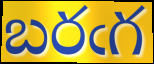
బరఁగ